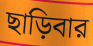
ছাড়িবার